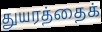
துயரத்தைக்